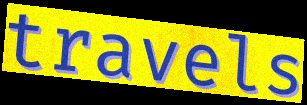
travels